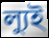
ল্যুই